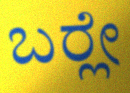
ಬರ್‍ಲೇ